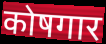
कोषगार